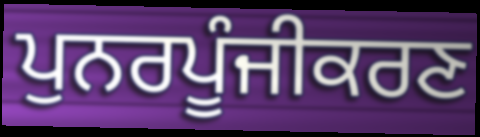
ਪੁਨਰਪੂੰਜੀਕਰਣ